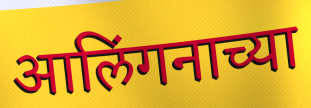
आलिंगनाच्या